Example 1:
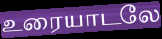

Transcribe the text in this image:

உரையாடலே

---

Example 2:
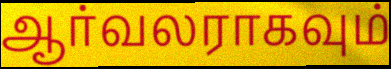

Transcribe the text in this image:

ஆர்வலராகவும்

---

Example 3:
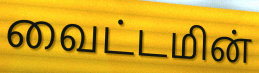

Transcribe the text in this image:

வைட்டமின்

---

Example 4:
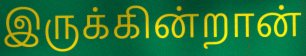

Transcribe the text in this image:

இருக்கின்றான்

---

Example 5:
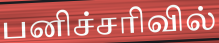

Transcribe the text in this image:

பனிச்சரிவில்